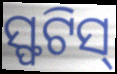
ସ୍ଫଟିସ୍